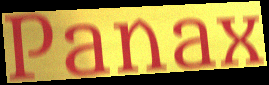
Panax